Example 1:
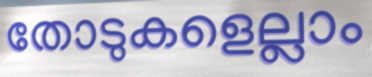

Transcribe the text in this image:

തോടുകളെല്ലാം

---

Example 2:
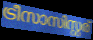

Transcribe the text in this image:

ട്രീസാസിസ്റ്റര്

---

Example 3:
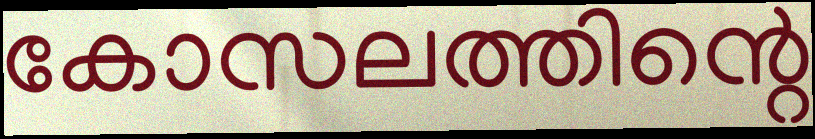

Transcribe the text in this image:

കോസലത്തിന്റെ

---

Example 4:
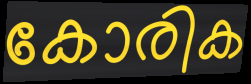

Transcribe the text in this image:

കോരിക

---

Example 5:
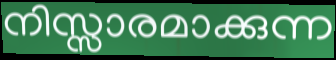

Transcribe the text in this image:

നിസ്സാരമാക്കുന്ന